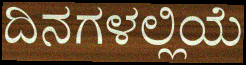
ದಿನಗಳಲ್ಲಿಯೆ